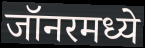
जॉनरमध्ये